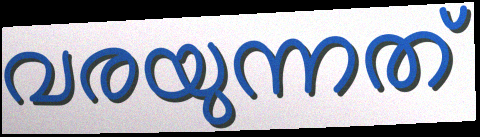
വരയുന്നത്